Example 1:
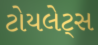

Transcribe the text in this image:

ટોયલેટ્સ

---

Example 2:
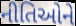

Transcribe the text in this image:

નીતિઓને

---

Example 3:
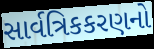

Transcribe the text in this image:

સાર્વત્રિકકરણનો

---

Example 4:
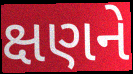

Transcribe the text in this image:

ક્ષણને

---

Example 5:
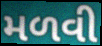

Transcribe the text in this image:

મળવી